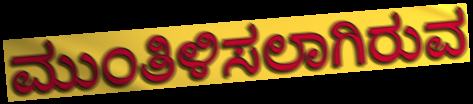
ಮುಂತಿಳಿಸಲಾಗಿರುವ